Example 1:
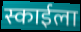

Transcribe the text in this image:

स्काईला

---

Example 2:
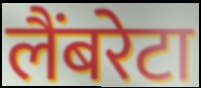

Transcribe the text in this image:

लैंबरेटा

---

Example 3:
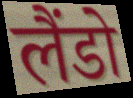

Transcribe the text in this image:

लैंडो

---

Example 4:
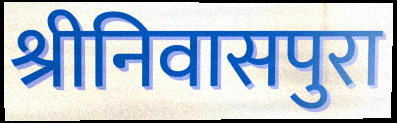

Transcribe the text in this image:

श्रीनिवासपुरा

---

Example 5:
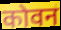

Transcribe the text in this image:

कोवन